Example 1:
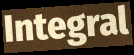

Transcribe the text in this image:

Integral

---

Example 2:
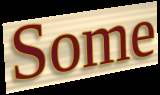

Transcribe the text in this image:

Some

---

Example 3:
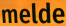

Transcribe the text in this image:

melde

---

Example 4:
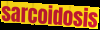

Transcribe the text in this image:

sarcoidosis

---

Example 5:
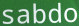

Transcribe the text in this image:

sabdo